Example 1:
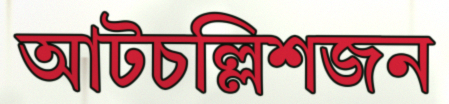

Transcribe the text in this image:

আটচল্লিশজন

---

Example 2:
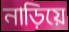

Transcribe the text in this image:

নাড়িয়ে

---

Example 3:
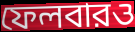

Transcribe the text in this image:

ফেলবারও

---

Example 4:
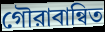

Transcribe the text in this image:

গৌরাবান্বিত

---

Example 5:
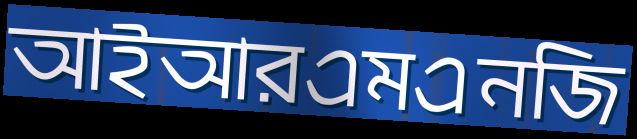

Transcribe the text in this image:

আইআরএমএনজি